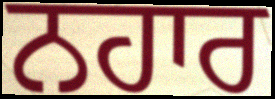
ਨਹਾਰ